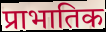
प्राभातिक